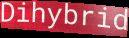
Dihybrid